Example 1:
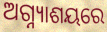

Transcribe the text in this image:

ଅଗ୍ନ୍ୟାଶୟରେ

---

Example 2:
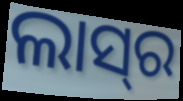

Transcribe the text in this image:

ଲାସ୍‍ର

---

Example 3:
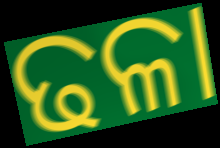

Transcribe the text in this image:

ଢଳା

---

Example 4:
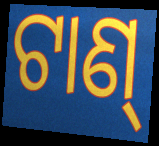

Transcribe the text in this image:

ଟାଣ୍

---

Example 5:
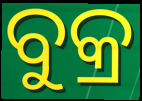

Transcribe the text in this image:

ବୁକ୍ର